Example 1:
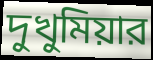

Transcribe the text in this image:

দুখুমিয়ার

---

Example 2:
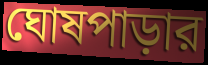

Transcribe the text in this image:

ঘোষপাড়ার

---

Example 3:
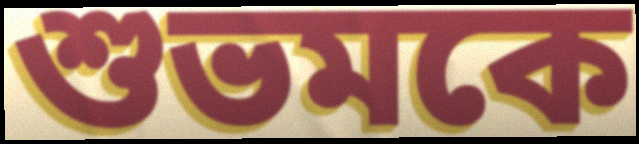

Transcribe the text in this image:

শুভমকে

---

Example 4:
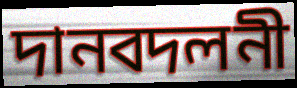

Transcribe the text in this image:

দানবদলনী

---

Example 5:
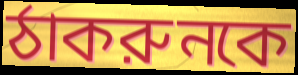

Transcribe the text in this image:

ঠাকরুনকে